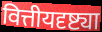
वित्तीयदृष्ट्या